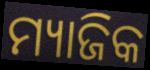
ମ୍ୟାଜିକ